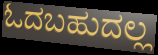
ಓದಬಹುದಲ್ಲ